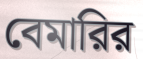
বেমারির